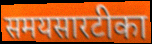
समयसारटीका